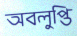
অবলুপ্তি